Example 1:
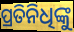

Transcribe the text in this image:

ପ୍ରତିନିଧିଙ୍କୁ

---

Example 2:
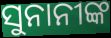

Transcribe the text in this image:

ସୁନାନୀଙ୍କ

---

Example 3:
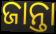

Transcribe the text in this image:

ଜାନ୍ତା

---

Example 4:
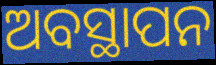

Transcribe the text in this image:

ଅବସ୍ଥାପନ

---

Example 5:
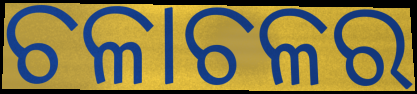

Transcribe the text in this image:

ଚଳାଚଳର